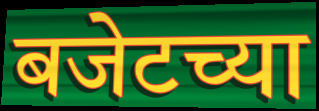
बजेटच्या